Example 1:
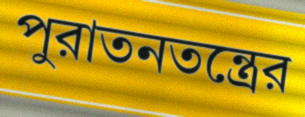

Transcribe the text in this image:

পুরাতনতন্ত্রের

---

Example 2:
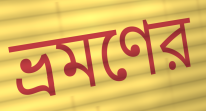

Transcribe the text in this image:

ভ্রমণের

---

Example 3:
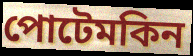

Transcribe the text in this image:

পোটেমকিন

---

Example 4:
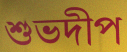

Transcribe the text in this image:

শুভদীপ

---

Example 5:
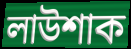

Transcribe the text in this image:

লাউশাক